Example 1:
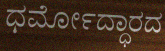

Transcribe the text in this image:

ಧರ್ಮೋದ್ಧಾರದ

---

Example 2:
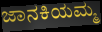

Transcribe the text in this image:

ಜಾನಕಿಯಮ್ಮ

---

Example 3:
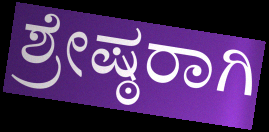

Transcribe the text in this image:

ಶ್ರೇಷ್ಠರಾಗಿ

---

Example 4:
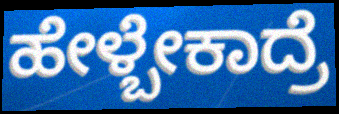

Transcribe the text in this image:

ಹೇಳ್ಬೇಕಾದ್ರೆ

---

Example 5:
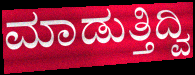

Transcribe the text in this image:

ಮಾಡುತ್ತಿದ್ವಿ